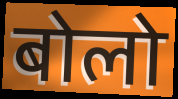
बोलो